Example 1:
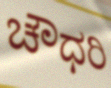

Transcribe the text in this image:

ಚೌಧರಿ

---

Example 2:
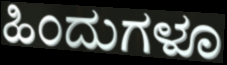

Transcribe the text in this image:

ಹಿಂದುಗಳೂ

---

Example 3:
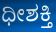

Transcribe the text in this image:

ಧೀಶಕ್ತಿ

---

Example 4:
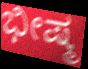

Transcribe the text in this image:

ಭೀಷ್ಮ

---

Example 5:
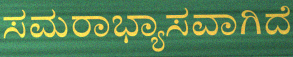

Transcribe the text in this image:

ಸಮರಾಭ್ಯಾಸವಾಗಿದೆ